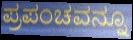
ಪ್ರಪಂಚವನ್ನೂ